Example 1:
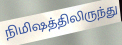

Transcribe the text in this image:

நிமிஷத்திலிருந்து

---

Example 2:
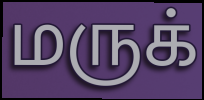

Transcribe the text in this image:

மருக்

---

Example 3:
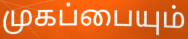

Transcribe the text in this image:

முகப்பையும்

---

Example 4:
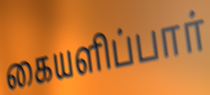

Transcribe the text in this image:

கையளிப்பார்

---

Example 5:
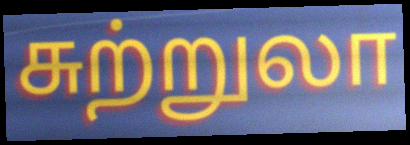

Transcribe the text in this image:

சுற்றுலா